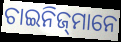
ଚାଇନିଜ୍‍ମାନେ